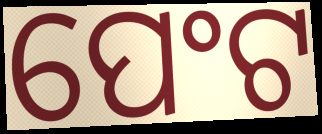
ପେଂଟ